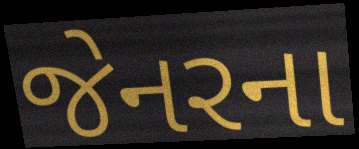
જેનરના